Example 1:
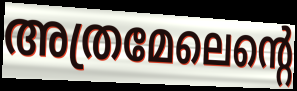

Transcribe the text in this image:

അത്രമേലെന്റെ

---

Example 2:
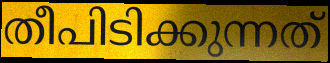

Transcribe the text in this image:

തീപിടിക്കുന്നത്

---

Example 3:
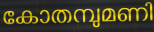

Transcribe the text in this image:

കോതമ്പുമണി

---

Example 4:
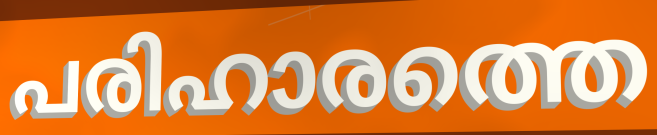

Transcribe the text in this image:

പരിഹാരത്തെ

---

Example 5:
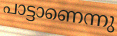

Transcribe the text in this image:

പാട്ടാണെന്നു